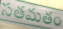
సతమతం